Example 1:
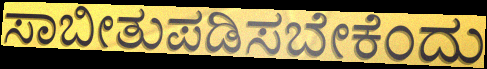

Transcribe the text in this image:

ಸಾಬೀತುಪಡಿಸಬೇಕೆಂದು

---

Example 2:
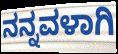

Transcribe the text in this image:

ನನ್ನವಳಾಗಿ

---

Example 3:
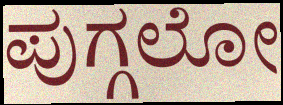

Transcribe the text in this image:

ಪುಗ್ಗಲೋ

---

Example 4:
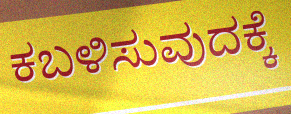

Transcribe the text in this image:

ಕಬಳಿಸುವುದಕ್ಕೆ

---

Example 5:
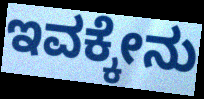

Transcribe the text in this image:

ಇವಕ್ಕೇನು